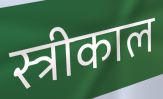
स्त्रीकाल